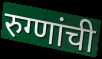
रुग्णांची